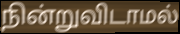
நின்றுவிடாமல்